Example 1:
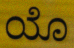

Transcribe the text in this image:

ಯೊ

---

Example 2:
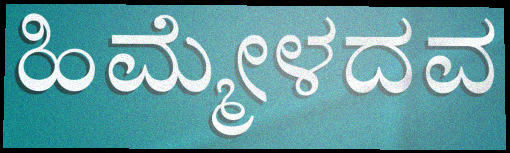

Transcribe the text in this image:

ಹಿಮ್ಮೇಳದವ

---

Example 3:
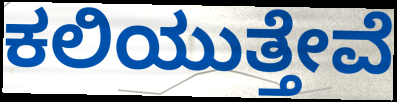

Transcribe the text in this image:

ಕಲಿಯುತ್ತೇವೆ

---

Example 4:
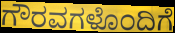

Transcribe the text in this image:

ಗೌರವಗಳೊಂದಿಗೆ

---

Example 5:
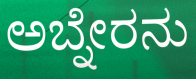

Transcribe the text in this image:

ಅಬ್ನೇರನು